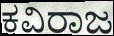
ಕವಿರಾಜ